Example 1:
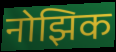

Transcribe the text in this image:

नोझिक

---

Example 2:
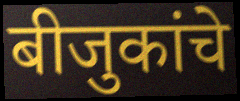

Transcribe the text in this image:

बीजुकांचे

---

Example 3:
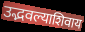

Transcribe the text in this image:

उद्भवल्याशिवाय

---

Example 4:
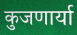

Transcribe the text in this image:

कुजणार्या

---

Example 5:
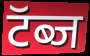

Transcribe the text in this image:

टॅब्ज